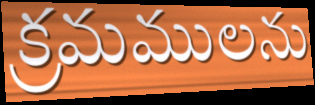
క్రమములను